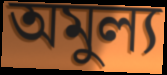
অমুল্য